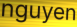
nguyen